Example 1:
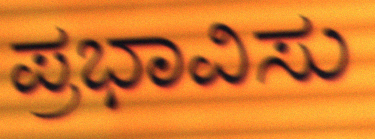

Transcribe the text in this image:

ಪ್ರಭಾವಿಸು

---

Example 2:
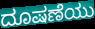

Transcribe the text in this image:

ದೂಷಣೆಯು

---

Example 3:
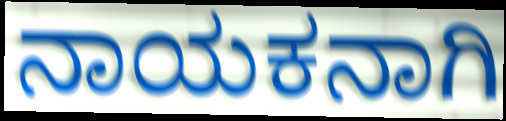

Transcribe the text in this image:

ನಾಯಕನಾಗಿ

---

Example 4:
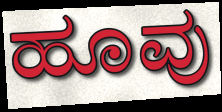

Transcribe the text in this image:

ಹೂವು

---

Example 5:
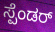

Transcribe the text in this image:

ಸ್ಪೆಂಡರ್